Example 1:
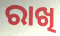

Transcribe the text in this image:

ରାଖି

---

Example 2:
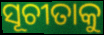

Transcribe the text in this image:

ସୂଚୀତାକୁ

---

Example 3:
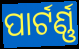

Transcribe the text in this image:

ପାର୍ଟର୍ଣ୍ଣ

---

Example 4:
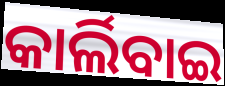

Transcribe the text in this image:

କାର୍ଲିବାଇ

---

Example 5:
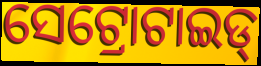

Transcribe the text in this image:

ସେଟ୍ରୋଟାଇଡ୍